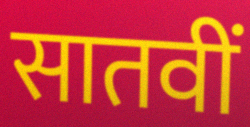
सातवीं